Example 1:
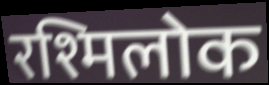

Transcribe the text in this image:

रश्मिलोक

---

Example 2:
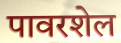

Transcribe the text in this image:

पावरशेल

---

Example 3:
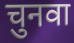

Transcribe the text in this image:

चुनवा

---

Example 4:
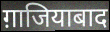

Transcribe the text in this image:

ग़ाजियाबाद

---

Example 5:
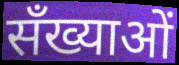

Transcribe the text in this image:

सँख्याओं